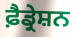
ਫ਼ੈਡ੍ਰੇਸ਼ਨ